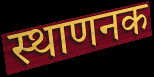
स्थाणनक